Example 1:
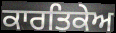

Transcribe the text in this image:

ਕਾਰਤਿਕੇਅ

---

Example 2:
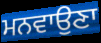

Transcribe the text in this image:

ਮਨਵਾਉਣਾ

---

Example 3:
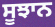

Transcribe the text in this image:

ਸੂਝਾਨ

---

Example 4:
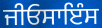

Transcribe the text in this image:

ਜੀਓਸਾਇੰਸ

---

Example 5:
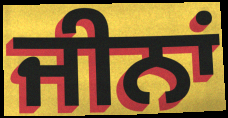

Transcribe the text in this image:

ਜੀਨਾਂ